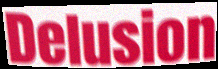
Delusion